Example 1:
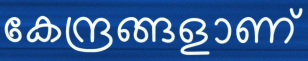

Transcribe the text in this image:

കേന്ദ്രങ്ങളാണ്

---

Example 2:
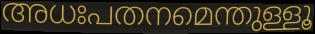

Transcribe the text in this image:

അധഃപതനമെന്തുള്ളൂ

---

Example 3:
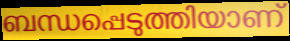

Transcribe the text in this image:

ബന്ധപ്പെടുത്തിയാണ്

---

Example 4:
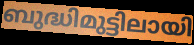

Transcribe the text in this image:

ബുദ്ധിമുട്ടിലായി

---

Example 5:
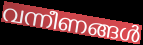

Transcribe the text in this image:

വന്നീണങ്ങൾ